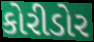
કોરીડોર